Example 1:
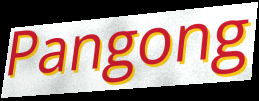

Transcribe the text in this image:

Pangong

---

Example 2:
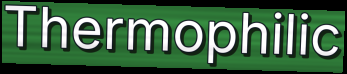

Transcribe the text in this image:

Thermophilic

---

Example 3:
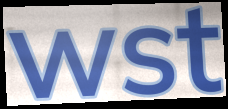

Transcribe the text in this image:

wst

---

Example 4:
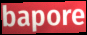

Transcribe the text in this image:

bapore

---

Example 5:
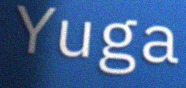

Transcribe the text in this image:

Yuga